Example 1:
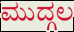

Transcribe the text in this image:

ಮುದ್ಗಲ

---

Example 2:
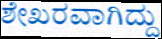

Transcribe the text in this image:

ಶೇಖರವಾಗಿದ್ದು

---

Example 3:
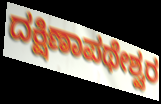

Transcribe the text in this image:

ದಕ್ಷಿಣಾಪಥೇಶ್ವರ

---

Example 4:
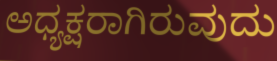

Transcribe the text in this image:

ಅಧ್ಯಕ್ಷರಾಗಿರುವುದು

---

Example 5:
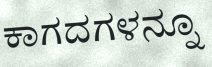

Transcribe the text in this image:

ಕಾಗದಗಳನ್ನೂ